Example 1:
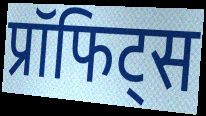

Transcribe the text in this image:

प्रॉफिट्स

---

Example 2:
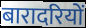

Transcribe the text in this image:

बारादरियों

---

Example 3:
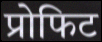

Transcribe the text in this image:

प्रोफिट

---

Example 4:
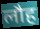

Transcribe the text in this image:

लौह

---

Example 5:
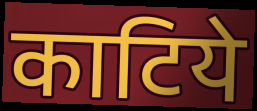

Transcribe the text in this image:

काटिये